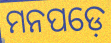
ମନପଡ଼େ